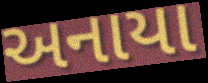
અનાયા